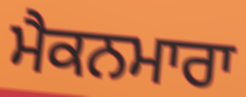
ਮੈਕਨਮਾਰਾ